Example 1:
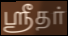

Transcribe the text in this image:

ஸ்ரீதர்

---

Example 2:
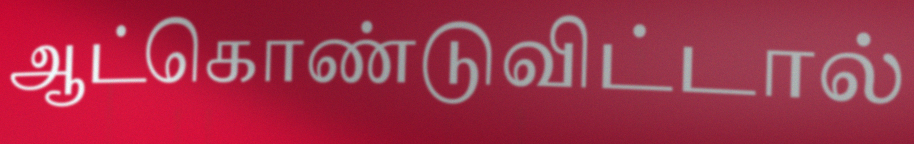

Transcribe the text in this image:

ஆட்கொண்டுவிட்டால்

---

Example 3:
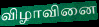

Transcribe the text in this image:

விழாவினை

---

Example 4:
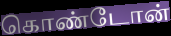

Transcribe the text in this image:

கொண்டோன்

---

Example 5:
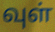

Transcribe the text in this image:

வுள்